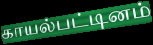
காயல்பட்டினம்